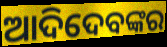
ଆଦିଦେବଙ୍କର